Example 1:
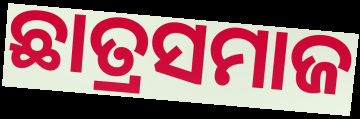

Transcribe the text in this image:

ଛାତ୍ରସମାଜ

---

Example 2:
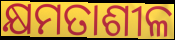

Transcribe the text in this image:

କ୍ଷମତାଶୀଳ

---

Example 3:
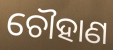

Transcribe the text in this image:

ଚୌହାଣ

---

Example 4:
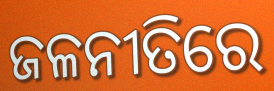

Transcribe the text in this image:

ଜଳନୀତିରେ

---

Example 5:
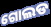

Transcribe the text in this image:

ଗୋଲଡ